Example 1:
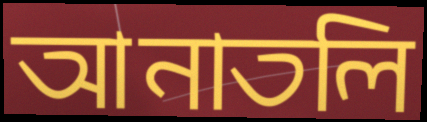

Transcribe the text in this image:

আনাতলি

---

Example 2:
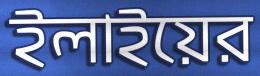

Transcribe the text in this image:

ইলাইয়ের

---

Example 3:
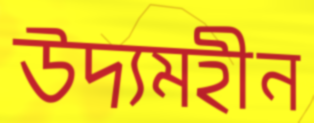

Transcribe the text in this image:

উদ্যমহীন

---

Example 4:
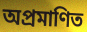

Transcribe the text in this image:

অপ্রমাণিত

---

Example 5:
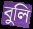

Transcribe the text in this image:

বুলি